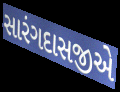
સારંગદાસજીએ